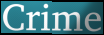
Crime